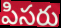
పిసరు